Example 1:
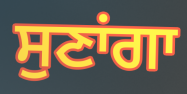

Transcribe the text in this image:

ਸੁਣਾਂਗਾ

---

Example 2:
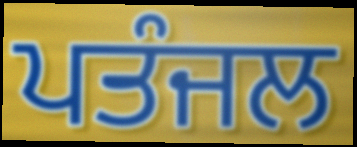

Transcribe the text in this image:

ਪਤੰਜਲ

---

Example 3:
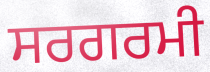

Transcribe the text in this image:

ਸਰਗਰਮੀ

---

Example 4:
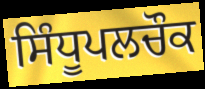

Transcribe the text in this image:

ਸਿੰਧੂਪਲਚੌਕ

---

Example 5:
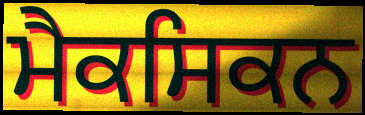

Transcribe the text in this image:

ਮੈਕਸਿਕਨ